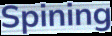
Spining